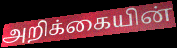
அறிக்கையின்